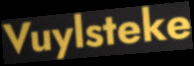
Vuylsteke